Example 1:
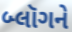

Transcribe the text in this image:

બ્લૉગને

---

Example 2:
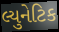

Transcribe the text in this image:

લ્યુનેટિક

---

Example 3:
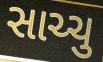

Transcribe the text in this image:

સાચ્ચુ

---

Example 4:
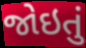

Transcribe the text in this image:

જોઇતું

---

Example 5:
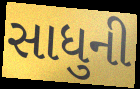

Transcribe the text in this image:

સાધુની